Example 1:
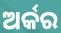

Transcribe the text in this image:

ଅର୍କର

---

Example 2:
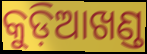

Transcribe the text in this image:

କୁଡ଼ିଆଖଣ୍ଡ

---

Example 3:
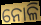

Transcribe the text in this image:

ନୋଳି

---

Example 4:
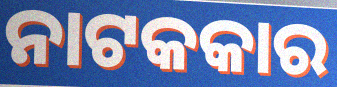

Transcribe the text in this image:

ନାଟକକାର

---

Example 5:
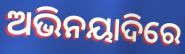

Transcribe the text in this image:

ଅଭିନୟାଦିରେ